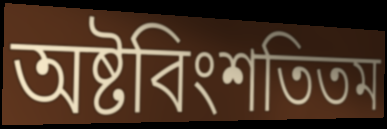
অষ্টবিংশতিতম